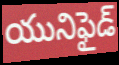
యునిఫైడ్